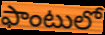
ఫాంటులో